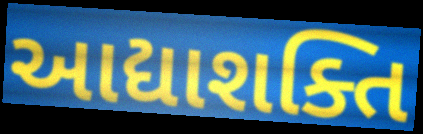
આદ્યાશક્તિ